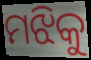
ମଝିକୁ